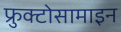
फ्रुक्टोसामाइन